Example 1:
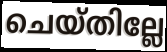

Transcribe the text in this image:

ചെയ്തില്ലേ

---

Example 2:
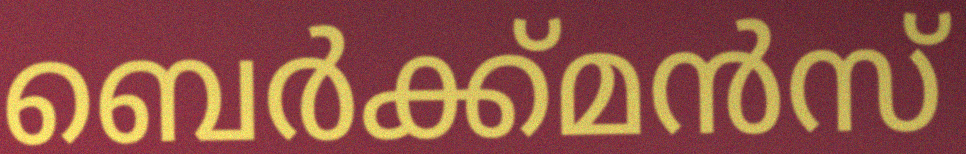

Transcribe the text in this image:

ബെർക്ക്മൻസ്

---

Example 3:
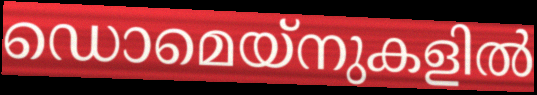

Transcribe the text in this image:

ഡൊമെയ്നുകളിൽ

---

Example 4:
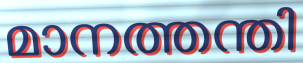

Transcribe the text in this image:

മാനത്തന്തി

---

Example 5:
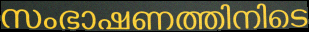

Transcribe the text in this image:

സംഭാഷണത്തിനിടെ